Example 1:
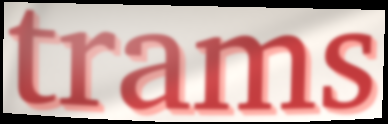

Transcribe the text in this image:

trams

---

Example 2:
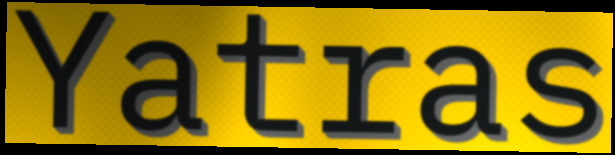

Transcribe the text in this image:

Yatras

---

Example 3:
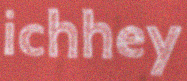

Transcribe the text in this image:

ichhey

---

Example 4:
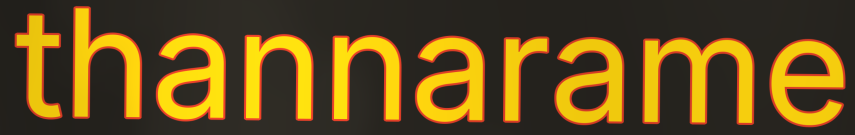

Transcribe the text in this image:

thannarame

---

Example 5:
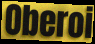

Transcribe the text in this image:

Oberoi